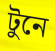
টুনে